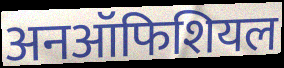
अनऑफिशियल